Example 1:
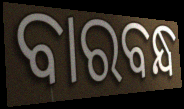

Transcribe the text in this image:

ବାରବନ୍ଧ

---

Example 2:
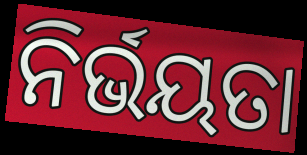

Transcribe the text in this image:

ନିର୍ଭୟତା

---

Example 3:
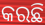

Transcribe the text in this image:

କରଛି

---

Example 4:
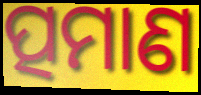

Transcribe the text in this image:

ତ୍ପମାଣ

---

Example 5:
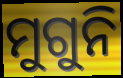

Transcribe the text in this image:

ମୁଗୁନି